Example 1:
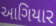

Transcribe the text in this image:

આગિયાર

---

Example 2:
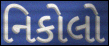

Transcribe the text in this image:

નિકોલો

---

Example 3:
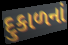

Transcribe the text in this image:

દુકાળનાં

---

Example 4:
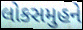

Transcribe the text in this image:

લોકસમુહને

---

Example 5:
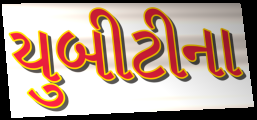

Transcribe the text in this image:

યુબીટીના